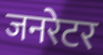
जनरेटर